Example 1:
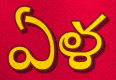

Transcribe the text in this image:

ఏళ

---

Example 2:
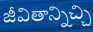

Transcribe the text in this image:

జీవితాన్నిచ్చి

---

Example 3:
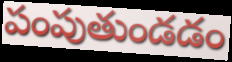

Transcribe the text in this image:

పంపుతుండడం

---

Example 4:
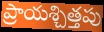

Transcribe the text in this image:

ప్రాయశ్చిత్తపు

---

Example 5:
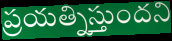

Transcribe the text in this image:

ప్రయత్నిస్తుందని